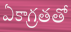
ఏకాగ్రతతో